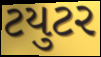
ટયુટર